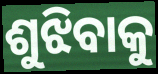
ଶୁଝିବାକୁ